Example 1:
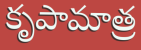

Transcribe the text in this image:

కృపామాత్ర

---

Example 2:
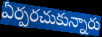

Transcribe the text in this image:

ఏర్పరచుకున్నారు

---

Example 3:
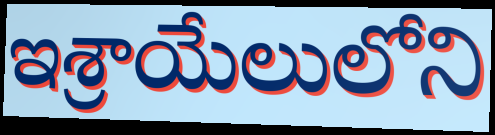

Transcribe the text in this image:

ఇశ్రాయేలులోని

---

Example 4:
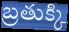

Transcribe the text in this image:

బ్రతుక్కి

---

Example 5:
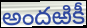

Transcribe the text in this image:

అందఱికీ